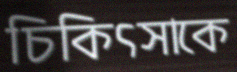
চিকিৎসাকে